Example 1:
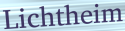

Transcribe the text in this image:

Lichtheim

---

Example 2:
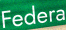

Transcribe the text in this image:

Federa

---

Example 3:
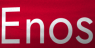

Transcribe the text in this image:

Enos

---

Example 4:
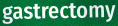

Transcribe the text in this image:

gastrectomy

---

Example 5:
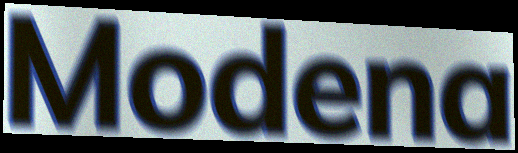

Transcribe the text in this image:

Modena